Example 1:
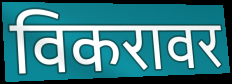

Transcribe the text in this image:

विकरावर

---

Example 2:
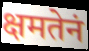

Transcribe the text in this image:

क्षमतेनं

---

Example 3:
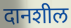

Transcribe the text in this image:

दानशील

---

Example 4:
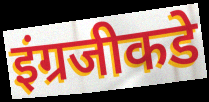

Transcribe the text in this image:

इंग्रजीकडे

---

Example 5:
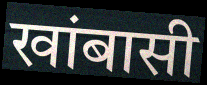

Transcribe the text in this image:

खांबासी